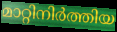
മാറ്റിനിർത്തിയ